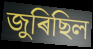
জুৰিছিল